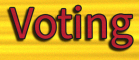
Voting